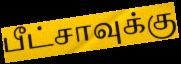
பீட்சாவுக்கு